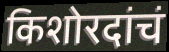
किशोरदांचं